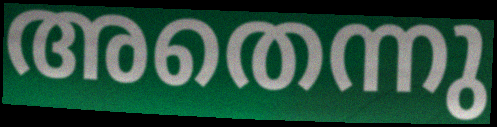
അതെന്നു